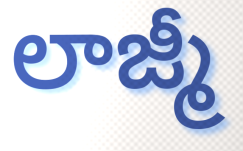
లాజ్మీ